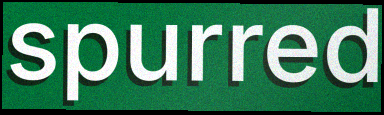
spurred